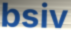
bsiv